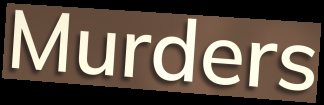
Murders